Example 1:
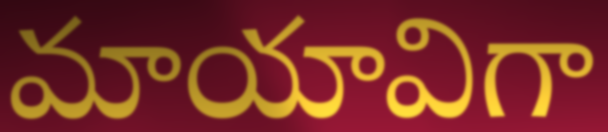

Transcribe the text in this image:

మాయావిగా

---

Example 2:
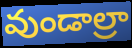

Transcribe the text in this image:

వుండాల్రా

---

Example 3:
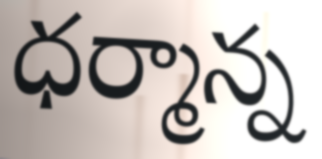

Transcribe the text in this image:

ధర్మాన్న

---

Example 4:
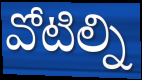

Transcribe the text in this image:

వోటిల్ని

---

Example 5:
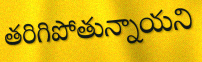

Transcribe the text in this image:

తరిగిపోతున్నాయని